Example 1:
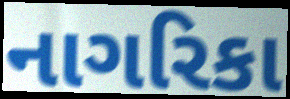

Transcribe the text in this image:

નાગરિકા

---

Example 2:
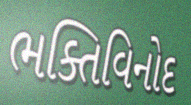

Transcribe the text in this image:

ભક્તિવિનોદ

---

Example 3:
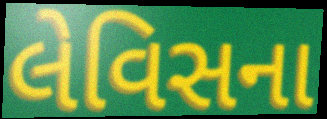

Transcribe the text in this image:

લેવિસના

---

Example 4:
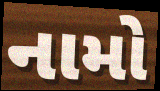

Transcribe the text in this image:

નામો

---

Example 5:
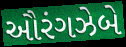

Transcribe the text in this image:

ઔરંગઝેબે